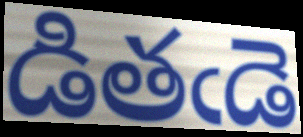
డితఁడె